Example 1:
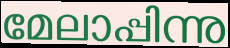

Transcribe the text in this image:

മേലാപ്പിന്നു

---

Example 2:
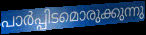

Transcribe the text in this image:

പാർപ്പിടമൊരുക്കുന്നു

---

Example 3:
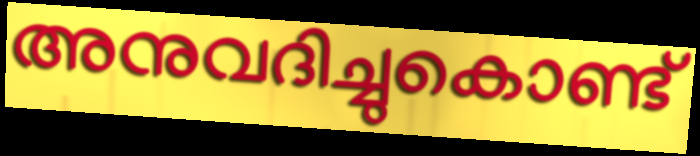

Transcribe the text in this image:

അനുവദിച്ചുകൊണ്ട്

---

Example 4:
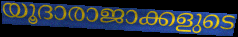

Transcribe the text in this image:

യൂദാരാജാക്കളുടെ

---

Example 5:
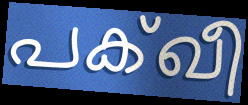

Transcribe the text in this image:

പക്ഖീ